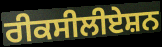
ਰੀਕਸੀਲੀਏਸ਼ਨ